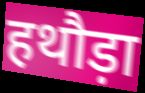
हथौड़ा